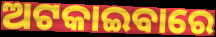
ଅଟକାଇବାରେ